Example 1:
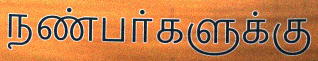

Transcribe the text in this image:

நண்பர்களுக்கு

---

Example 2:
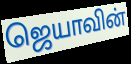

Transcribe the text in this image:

ஜெயாவின்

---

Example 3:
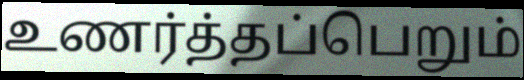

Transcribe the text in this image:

உணர்த்தப்பெறும்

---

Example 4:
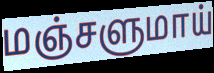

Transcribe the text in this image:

மஞ்சளுமாய்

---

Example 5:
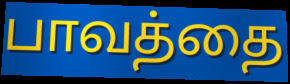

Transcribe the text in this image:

பாவத்தை